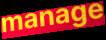
manage